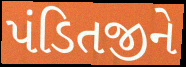
પંડિતજીને